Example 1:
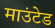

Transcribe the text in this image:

माउंटेड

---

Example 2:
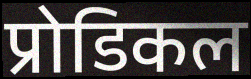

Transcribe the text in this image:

प्रोडिकल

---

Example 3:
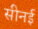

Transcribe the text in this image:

सीनई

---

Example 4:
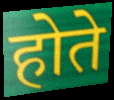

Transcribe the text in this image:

होते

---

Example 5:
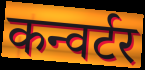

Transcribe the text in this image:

कन्वर्टर